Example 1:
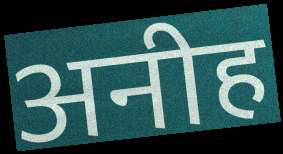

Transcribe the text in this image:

अनीह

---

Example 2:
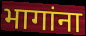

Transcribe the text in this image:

भागांना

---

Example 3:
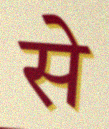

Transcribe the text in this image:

से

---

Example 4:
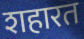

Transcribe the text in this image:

शहारत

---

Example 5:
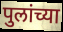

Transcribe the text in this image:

पुलांच्या